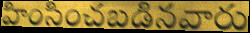
హింసించబడినవారు